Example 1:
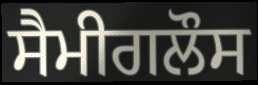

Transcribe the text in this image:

ਸੈਮੀਗਲੌਸ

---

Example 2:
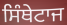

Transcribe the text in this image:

ਸਿੰਥੇਟਾਜ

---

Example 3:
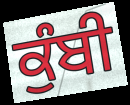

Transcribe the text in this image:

ਕੁੰਬੀ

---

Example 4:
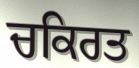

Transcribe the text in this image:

ਚਕਿਰਤ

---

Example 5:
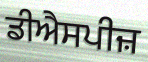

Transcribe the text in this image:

ਡੀਐਸਪੀਜ਼